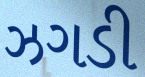
ઝગડી